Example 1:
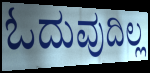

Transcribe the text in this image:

ಓದುವುದಿಲ್ಲ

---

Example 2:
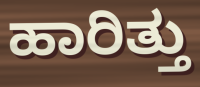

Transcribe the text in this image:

ಹಾರಿತ್ತು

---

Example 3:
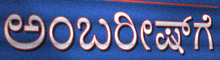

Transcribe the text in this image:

ಅಂಬರೀಷ್‌ಗೆ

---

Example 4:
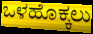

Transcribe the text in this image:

ಒಳಹೊಕ್ಕಲು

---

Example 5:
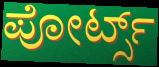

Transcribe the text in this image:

ಪೋರ್ಟ್ಸ್